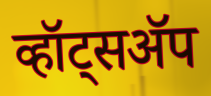
व्हॉट्सॲप